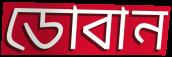
ডোবান